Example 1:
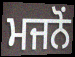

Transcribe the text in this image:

ਮਜਨੋਂ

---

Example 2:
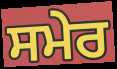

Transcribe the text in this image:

ਸਮੇਰ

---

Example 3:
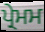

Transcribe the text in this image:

ਪ੍ਰੇਮਮ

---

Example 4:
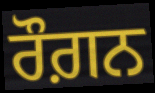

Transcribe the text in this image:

ਰੌਗ਼ਨ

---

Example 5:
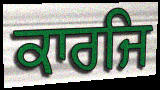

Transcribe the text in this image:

ਕਾਰਜਿ